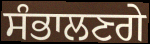
ਸੰਭਾਲਣਗੇ